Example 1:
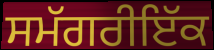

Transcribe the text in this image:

ਸਮੱਗਰੀਇੱਕ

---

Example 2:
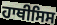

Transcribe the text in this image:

ਹਾਥੀਸਿਸ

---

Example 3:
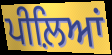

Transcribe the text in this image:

ਪੀਲ਼ਿਆਂ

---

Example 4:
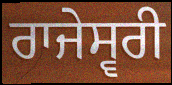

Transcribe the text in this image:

ਰਾਜੇਸ੍ਵਰੀ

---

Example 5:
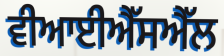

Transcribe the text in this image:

ਵੀਆਈਐੱਸਐੱਲ